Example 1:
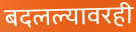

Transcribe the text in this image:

बदलल्यावरही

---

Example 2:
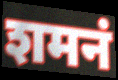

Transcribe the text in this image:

शमनं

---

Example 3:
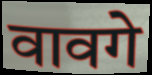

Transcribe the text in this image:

वावगे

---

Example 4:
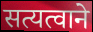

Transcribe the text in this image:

सत्यत्वाने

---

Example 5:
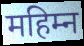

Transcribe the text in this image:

महिम्न